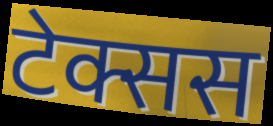
टेक्सस